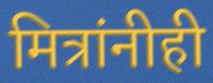
मित्रांनीही